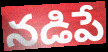
నడిపే